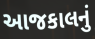
આજકાલનું